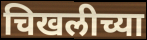
चिखलीच्या